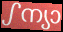
ഽന്യാ